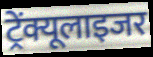
ट्रेंक्यूलाइजर